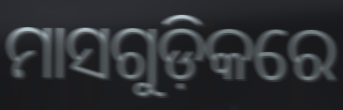
ମାସଗୁଡ଼ିକରେ